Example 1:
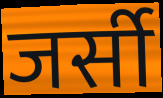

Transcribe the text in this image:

जर्सी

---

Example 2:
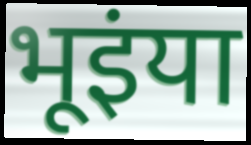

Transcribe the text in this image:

भूइंया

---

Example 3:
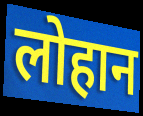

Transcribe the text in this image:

लोहान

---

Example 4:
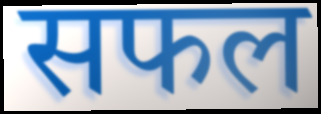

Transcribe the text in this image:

सफल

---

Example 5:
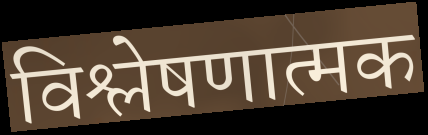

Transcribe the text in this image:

विश्लेषणात्मक